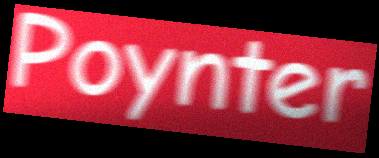
Poynter